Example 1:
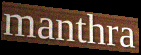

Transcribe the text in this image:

manthra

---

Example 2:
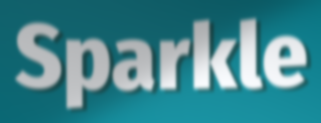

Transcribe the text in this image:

Sparkle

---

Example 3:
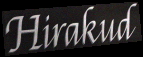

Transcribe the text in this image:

Hirakud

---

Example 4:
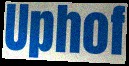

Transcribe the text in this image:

Uphof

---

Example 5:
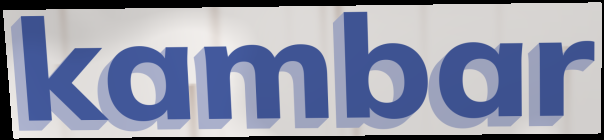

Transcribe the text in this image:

kambar